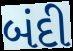
બંદી